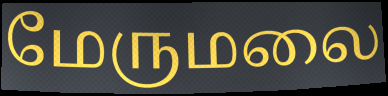
மேருமலை